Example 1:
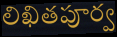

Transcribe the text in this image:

లిఖితపూర్వ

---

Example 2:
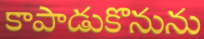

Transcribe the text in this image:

కాపాడుకొనును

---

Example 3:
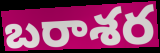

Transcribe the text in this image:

బరాశర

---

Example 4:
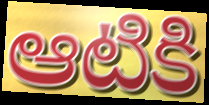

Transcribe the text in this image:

ఆటికి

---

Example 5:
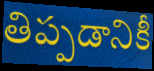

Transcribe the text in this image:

తిప్పడానికీ